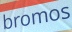
bromos